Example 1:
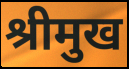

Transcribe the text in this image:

श्रीमुख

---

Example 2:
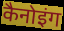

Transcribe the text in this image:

कैनोइंग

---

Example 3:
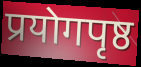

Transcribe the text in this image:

प्रयोगपृष्ठ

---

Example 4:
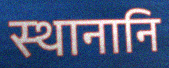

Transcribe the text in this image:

स्थानानि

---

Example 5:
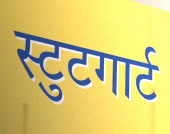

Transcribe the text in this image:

स्टुटगार्ट